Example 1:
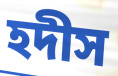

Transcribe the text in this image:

হদীস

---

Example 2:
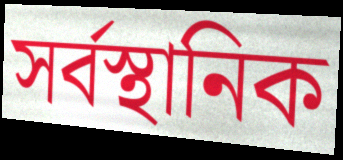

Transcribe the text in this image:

সর্বস্থানিক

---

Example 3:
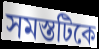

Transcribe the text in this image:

সমস্তটিকে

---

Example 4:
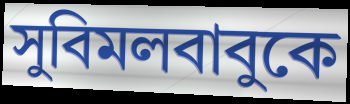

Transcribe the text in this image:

সুবিমলবাবুকে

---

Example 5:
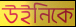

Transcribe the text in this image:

উইনিকে